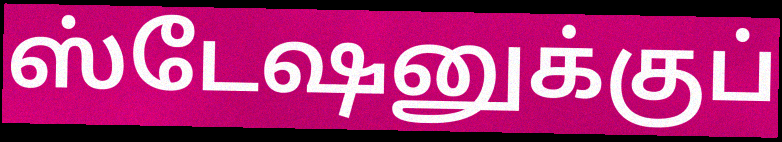
ஸ்டேஷனுக்குப்